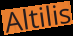
Altilis